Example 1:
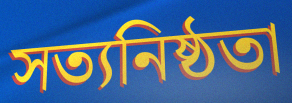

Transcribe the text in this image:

সত্যনিষ্ঠতা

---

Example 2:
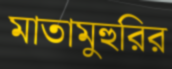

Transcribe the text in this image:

মাতামুহুরির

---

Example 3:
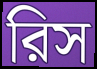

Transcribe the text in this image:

রিস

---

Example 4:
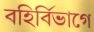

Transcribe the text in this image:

বহির্বিভাগে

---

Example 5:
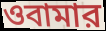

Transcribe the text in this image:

ওবামার